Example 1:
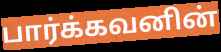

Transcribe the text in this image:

பார்க்கவனின்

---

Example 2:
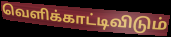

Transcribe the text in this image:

வெளிக்காட்டிவிடும்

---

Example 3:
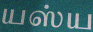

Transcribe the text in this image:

யஸ்ய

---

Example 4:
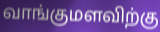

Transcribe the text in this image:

வாங்குமளவிற்கு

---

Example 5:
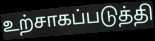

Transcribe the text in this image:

உற்சாகப்படுத்தி